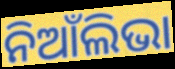
ନିଆଁଲିଭା